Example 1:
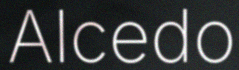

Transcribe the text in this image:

Alcedo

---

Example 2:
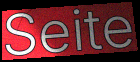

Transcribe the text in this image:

Seite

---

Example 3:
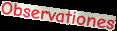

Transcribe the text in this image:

Observationes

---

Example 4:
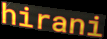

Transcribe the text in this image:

hirani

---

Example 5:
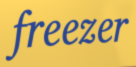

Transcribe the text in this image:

freezer